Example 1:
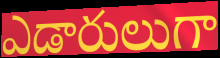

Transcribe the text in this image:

ఎడారులుగా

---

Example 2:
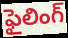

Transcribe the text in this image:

ఫైలింగ్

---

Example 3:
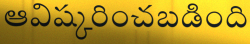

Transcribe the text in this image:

ఆవిష్కరించబడింది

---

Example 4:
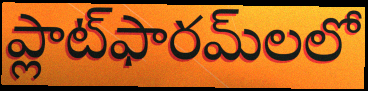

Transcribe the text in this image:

ప్లాట్‌ఫారమ్‌లలో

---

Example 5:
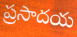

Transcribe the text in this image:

ప్రసాదయ